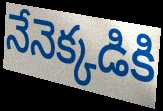
నేనెక్కడికి